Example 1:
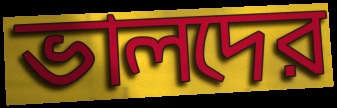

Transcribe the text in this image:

ভালদের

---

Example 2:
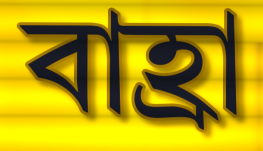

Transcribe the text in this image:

বাহ্রা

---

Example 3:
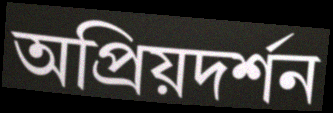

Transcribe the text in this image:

অপ্রিয়দর্শন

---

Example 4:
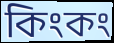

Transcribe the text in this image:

কিংকং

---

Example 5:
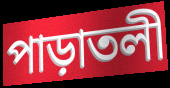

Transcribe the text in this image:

পাড়াতলী